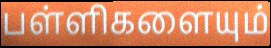
பள்ளிகளையும்